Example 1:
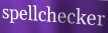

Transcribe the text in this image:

spellchecker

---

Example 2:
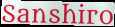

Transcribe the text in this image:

Sanshiro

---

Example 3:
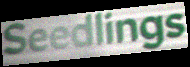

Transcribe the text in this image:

Seedlings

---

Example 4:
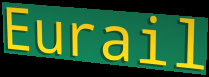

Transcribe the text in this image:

Eurail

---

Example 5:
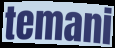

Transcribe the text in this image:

temani